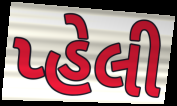
પ્હેલી